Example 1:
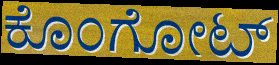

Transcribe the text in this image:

ಕೊಂಗೋಟ್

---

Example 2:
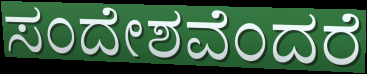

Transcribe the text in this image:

ಸಂದೇಶವೆಂದರೆ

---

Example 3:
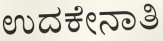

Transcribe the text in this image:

ಉದಕೇನಾತಿ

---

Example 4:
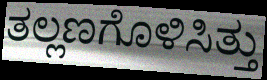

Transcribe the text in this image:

ತಲ್ಲಣಗೊಳಿಸಿತ್ತು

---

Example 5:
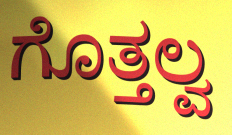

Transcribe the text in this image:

ಗೊತ್ತಲ್ವ